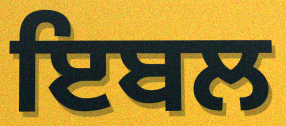
ਇਬਲ